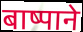
बाष्पाने